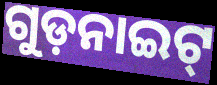
ଗୁଡ଼ନାଇଟ୍